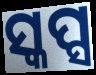
ସ୍କପ୍ସ